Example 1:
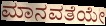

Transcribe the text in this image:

ಮಾನವತೆಯೇ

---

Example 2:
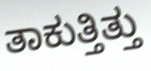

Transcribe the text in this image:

ತಾಕುತ್ತಿತ್ತು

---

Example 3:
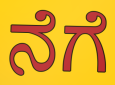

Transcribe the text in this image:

ನೆಗೆ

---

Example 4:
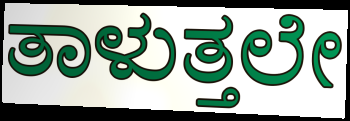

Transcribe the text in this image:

ತಾಳುತ್ತಲೇ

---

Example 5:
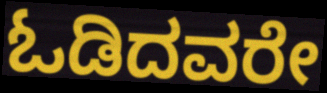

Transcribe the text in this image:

ಓಡಿದವರೇ